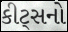
કીટ્સનો